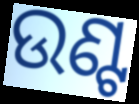
ଉଣ୍ଟ